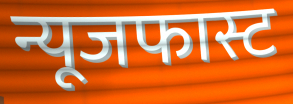
न्यूजफास्ट